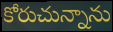
కోరుచున్నాను